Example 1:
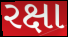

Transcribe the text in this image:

રક્ષા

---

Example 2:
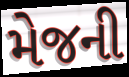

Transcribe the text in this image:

મેજની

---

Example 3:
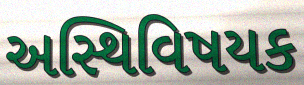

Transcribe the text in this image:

અસ્થિવિષયક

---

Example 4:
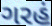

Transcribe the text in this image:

ગરહં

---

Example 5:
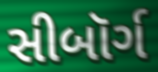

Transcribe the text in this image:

સીબૉર્ગ